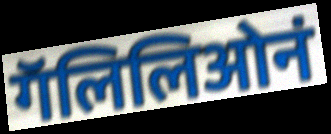
गॅलिलिओनं